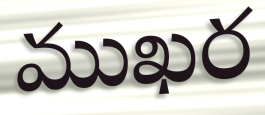
ముఖర